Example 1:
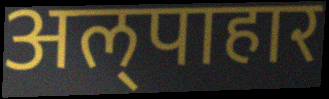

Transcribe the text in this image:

अल्पाहार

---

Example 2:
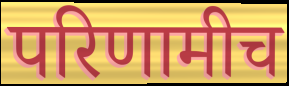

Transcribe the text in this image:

परिणामीच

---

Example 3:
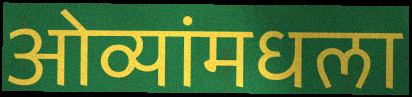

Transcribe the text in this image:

ओव्यांमधला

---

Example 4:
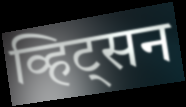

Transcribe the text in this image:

व्हिट्सन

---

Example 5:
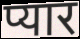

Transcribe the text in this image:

प्यार